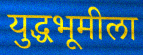
युद्धभूमीला